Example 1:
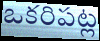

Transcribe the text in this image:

ఒకరిపట్ల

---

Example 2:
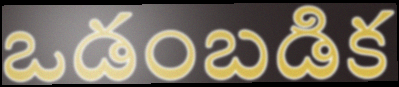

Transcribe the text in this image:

ఒడంబడిక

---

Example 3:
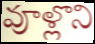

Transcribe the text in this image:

వూళ్లొని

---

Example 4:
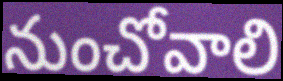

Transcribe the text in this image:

నుంచోవాలి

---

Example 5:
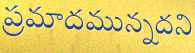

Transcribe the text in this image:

ప్రమాదమున్నదని